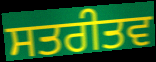
ਸਤਰੀਤਵ